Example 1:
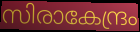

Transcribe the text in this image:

സിരാകേന്ദ്രം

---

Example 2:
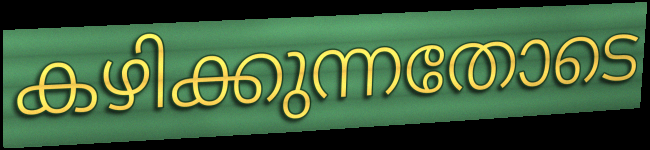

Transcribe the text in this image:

കഴിക്കുന്നതോടെ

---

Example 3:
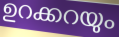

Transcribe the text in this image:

ഉറക്കറയും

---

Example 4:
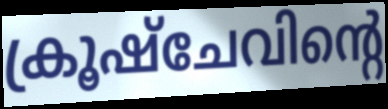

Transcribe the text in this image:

ക്രൂഷ്ചേവിന്റെ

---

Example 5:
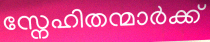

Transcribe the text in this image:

സ്നേഹിതന്മാർക്ക്